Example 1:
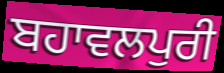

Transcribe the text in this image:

ਬਹਾਵਲਪੁਰੀ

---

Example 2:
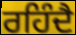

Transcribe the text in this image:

ਰਹਿੰਦੈ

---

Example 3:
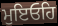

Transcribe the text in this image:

ਮੁਇਓਹਿ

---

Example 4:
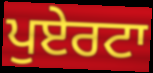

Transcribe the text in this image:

ਪੁਏਰਟਾ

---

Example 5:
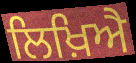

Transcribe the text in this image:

ਲਿਖ਼ਿਐ